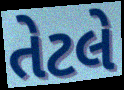
તેટલે